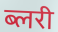
ब्लरी